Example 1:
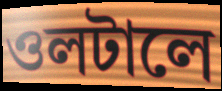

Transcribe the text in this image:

ওলটালে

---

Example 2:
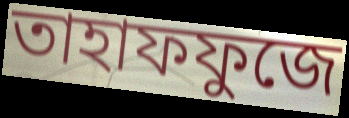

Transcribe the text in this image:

তাহাফফুজে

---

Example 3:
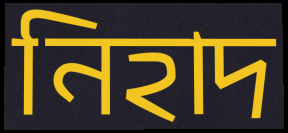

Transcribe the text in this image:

নিহাদ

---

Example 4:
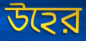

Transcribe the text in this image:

উহের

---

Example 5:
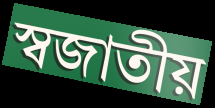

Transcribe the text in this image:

স্বজাতীয়